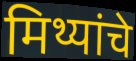
मिथ्यांचे